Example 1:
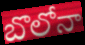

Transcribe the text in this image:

బొలోనా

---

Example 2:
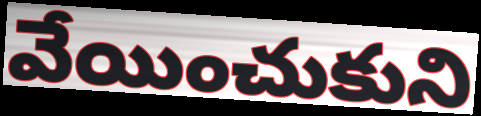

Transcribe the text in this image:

వేయించుకుని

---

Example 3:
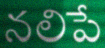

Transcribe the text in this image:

నలిపే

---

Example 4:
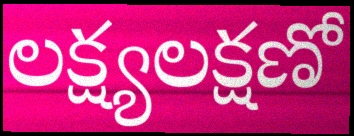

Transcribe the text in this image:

లక్ష్యలక్షణో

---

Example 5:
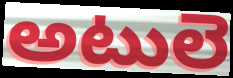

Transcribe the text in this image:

అటులె